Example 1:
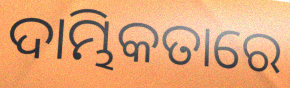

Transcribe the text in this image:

ଦାମ୍ଭିକତାରେ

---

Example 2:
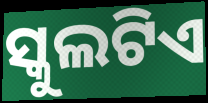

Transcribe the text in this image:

ସ୍କୁଲଟିଏ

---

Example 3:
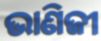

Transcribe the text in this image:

ଭାଣିଜୀ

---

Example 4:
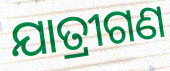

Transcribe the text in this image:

ଯାତ୍ରୀଗଣ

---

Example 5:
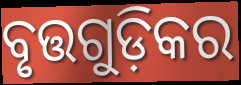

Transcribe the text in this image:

ବୃତ୍ତଗୁଡ଼ିକର